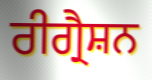
ਰੀਗ੍ਰੈਸ਼ਨ